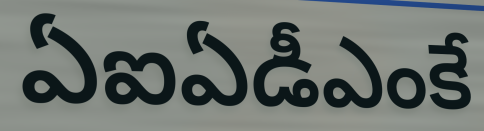
ఏఐఏడీఎంకే